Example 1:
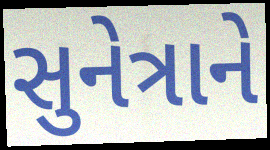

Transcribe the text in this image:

સુનેત્રાને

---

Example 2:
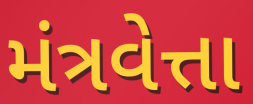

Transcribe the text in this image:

મંત્રવેત્તા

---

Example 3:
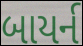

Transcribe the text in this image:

બાયર્ન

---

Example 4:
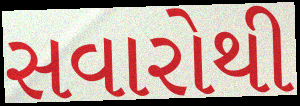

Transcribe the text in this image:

સવારોથી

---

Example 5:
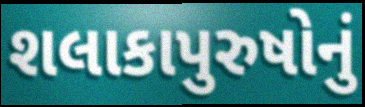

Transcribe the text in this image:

શલાકાપુરુષોનું